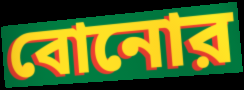
বোনোর